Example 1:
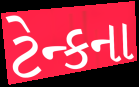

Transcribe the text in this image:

ટેન્કના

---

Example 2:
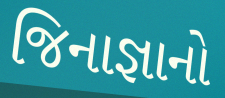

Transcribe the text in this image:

જિનાજ્ઞાનો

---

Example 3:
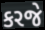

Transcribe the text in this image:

કરજે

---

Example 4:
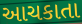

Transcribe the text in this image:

આચકાતા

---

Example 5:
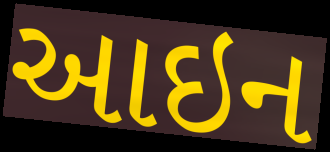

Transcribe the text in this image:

આઇન